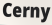
Cerny